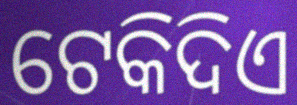
ଟେକିଦିଏ